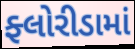
ફ્લોરીડામાં